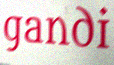
gandi